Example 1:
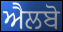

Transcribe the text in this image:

ਐਲਬੋ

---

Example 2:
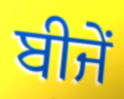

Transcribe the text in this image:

ਬੀਜੇਂ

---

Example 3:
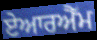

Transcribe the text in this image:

ਏਆਰਐੱਮ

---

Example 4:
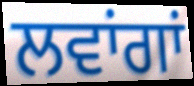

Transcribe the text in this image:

ਲਵਾਂਗਾਂ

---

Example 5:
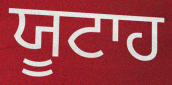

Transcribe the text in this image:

ਯੂਟਾਹ